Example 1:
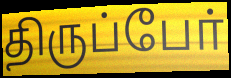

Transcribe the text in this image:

திருப்பேர்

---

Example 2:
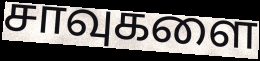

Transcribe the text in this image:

சாவுகளை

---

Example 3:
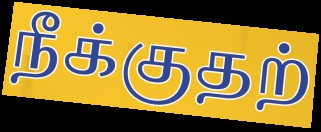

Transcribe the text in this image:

நீக்குதற்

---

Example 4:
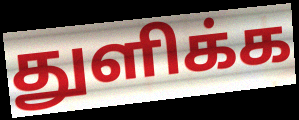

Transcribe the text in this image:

துளிக்க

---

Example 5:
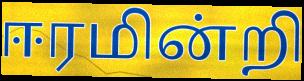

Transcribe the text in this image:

ஈரமின்றி